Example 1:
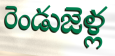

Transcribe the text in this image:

రెండుజెళ్ల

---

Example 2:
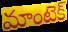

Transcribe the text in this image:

మాంటెక్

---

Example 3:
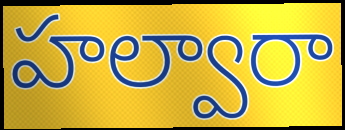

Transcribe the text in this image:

హల్వారా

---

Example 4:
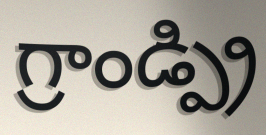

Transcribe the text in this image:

గ్రాండ్ప్రి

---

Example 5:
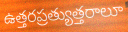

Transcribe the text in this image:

ఉత్తరప్రత్యుత్తరాలూ